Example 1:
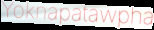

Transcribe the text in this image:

Yoknapatawpha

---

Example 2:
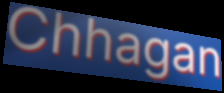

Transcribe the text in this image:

Chhagan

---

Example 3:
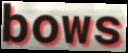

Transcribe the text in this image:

bows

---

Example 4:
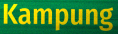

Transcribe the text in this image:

Kampung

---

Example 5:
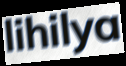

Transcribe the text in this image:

lihilya